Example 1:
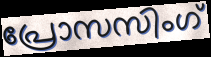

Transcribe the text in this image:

പ്രോസസിംഗ്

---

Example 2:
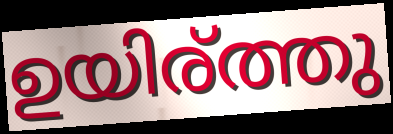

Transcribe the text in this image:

ഉയിര്ത്തു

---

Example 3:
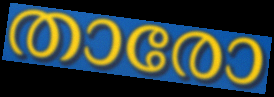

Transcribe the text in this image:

താരോ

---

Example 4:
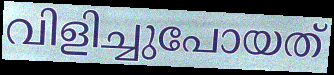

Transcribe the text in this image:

വിളിച്ചുപോയത്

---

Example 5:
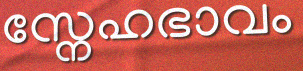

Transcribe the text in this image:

സ്നേഹഭാവം